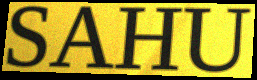
SAHU